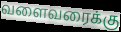
வளைவரைக்கு